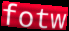
fotw